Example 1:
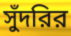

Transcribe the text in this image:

সুঁদরির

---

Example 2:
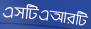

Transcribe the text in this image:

এসটিএআরটি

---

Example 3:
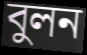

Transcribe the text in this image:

বুলন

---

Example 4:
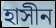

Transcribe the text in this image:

হাসীন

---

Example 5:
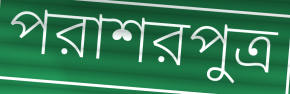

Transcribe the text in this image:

পরাশরপুত্র